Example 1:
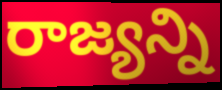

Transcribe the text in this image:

రాజ్యన్ని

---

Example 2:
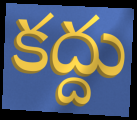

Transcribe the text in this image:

కద్దు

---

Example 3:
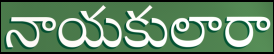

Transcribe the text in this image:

నాయకులారా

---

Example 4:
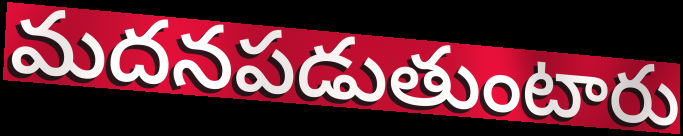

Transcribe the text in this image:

మదనపడుతుంటారు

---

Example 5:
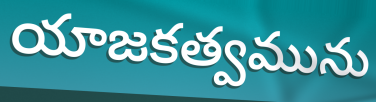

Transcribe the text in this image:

యాజకత్వమును